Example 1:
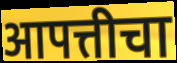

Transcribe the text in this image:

आपत्तीचा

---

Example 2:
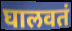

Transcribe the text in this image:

घालवतं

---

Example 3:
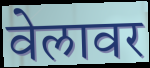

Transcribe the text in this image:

वेलावर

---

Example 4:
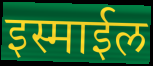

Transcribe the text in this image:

इस्माईल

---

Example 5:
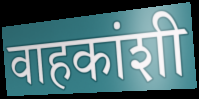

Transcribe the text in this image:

वाहकांशी